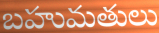
బహుమతులు